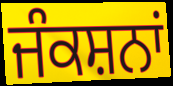
ਜੰਕਸ਼ਨਾਂ